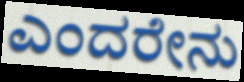
ಎಂದರೇನು